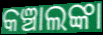
କଞ୍ଚାଲଙ୍କା